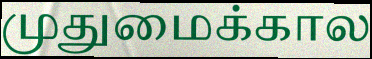
முதுமைக்கால